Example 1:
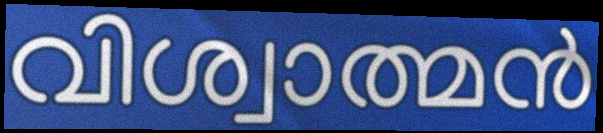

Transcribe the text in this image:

വിശ്വാത്മൻ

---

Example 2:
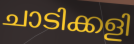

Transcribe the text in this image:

ചാടിക്കളി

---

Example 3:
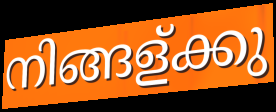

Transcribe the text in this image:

നിങ്ങള്ക്കു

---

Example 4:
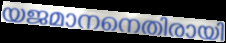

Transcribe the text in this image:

യജമാനനെതിരായി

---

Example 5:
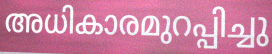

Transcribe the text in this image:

അധികാരമുറപ്പിച്ചു